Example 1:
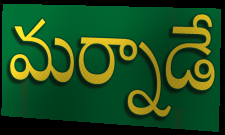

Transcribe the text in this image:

మర్నాడే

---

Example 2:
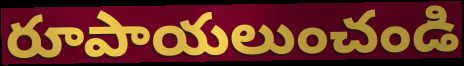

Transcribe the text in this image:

రూపాయలుంచండి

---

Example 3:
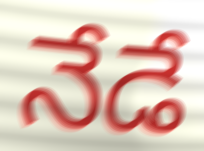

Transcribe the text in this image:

నేడే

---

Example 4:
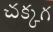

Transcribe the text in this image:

చక్కగ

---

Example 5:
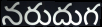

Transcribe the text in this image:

నరుదుగ